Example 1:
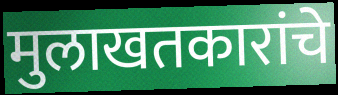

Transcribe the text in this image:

मुलाखतकारांचे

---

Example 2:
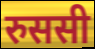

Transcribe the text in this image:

रुससी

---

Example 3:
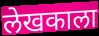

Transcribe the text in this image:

लेखकाला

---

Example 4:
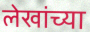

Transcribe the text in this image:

लेखांच्या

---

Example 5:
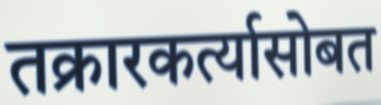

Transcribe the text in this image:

तक्रारकर्त्यासोबत